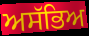
ਅਸੱਭਿਅ